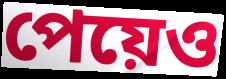
পেয়েও